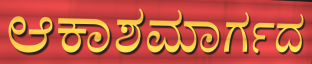
ಆಕಾಶಮಾರ್ಗದ